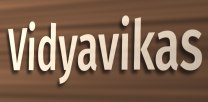
Vidyavikas